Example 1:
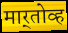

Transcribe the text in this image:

मार्तोव्ह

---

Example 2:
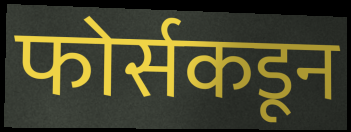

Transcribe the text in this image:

फोर्सकडून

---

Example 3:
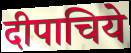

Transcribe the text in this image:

दीपाचिये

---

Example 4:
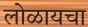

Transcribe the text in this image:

लोळायचा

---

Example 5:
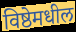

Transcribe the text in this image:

विष्ठेमधील